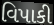
વિપાકી